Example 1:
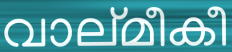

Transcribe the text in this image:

വാല്മീകീ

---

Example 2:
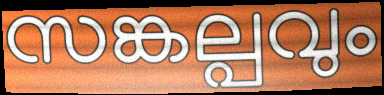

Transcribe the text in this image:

സങ്കല്പവും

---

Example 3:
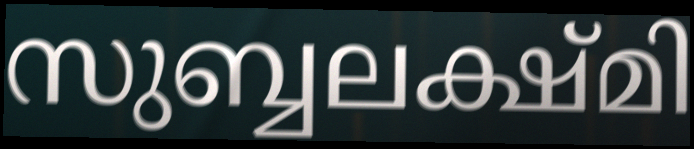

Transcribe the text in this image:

സുബ്ബലക്ഷ്മി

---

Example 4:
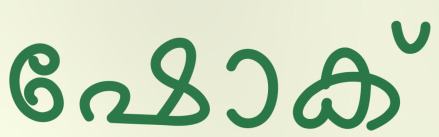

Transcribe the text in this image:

ഷോക്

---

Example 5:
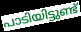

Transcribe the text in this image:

പാടിയിട്ടുണ്ട്